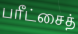
பரீட்சைத்